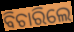
ବିଚାରିଲେ